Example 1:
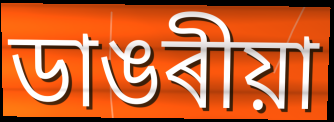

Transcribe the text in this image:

ডাঙৰীয়া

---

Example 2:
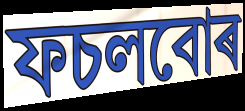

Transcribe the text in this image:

ফচলবোৰ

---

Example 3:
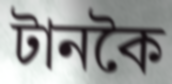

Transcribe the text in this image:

টানকৈ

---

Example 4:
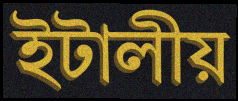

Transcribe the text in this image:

ইটালীয়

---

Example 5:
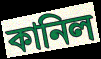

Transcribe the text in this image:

কানিল